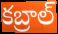
కబ్రాల్